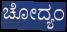
ಚೋದ್ಯಂ